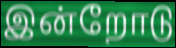
இன்றோடு